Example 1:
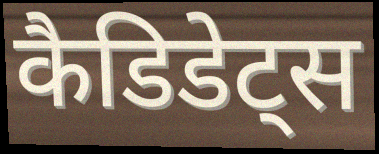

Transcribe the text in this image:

कैडिडेट्स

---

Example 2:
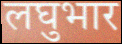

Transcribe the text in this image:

लघुभार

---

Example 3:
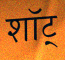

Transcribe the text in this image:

शॉट्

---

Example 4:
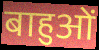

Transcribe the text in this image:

बाहुओं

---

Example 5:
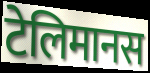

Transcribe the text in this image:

टेलिमानस